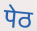
पेठ